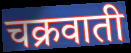
चक्रवाती